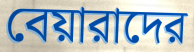
বেয়ারাদের